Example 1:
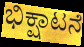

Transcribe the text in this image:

ಭಿಕ್ಷಾಟನೆ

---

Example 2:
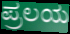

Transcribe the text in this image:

ಪ್ರಲಯ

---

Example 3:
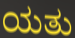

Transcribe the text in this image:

ಯತು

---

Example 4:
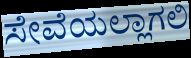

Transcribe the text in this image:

ಸೇವೆಯಲ್ಲಾಗಲಿ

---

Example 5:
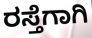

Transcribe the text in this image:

ರಸ್ತೆಗಾಗಿ